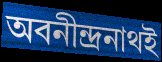
অবনীন্দ্রনাথই